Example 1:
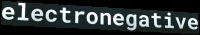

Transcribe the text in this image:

electronegative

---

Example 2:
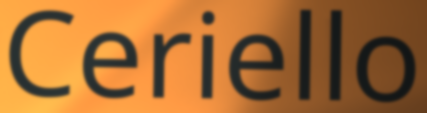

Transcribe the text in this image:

Ceriello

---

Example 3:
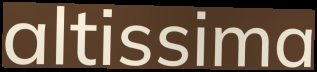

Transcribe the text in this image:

altissima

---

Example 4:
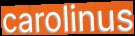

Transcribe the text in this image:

carolinus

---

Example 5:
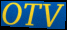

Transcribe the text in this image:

OTV